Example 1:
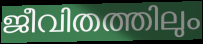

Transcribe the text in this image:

ജീവിതത്തിലും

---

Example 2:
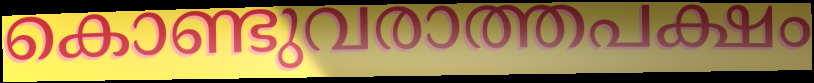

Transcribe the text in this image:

കൊണ്ടുവരാത്തപക്ഷം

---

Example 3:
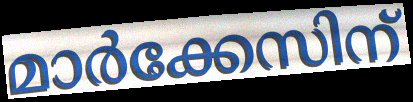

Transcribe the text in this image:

മാർക്കേസിന്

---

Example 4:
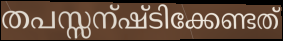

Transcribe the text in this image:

തപസ്സന്ഷ്ടിക്കേണ്ടത്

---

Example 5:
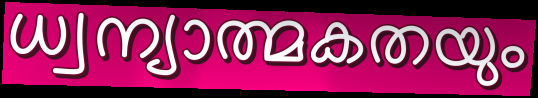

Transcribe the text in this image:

ധ്വന്യാത്മകതയും